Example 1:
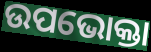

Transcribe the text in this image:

ଉପଭୋକ୍ତା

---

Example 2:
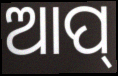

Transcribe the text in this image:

ଆପ୍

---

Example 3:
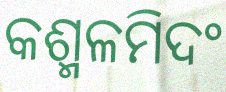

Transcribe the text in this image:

କଶ୍ମଳମିଦଂ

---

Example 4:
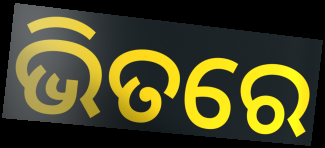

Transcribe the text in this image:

ଭିତରେ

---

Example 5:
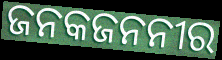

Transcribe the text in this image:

ଜନକଜନନୀର